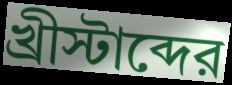
খ্রীস্টাব্দের